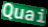
Quai